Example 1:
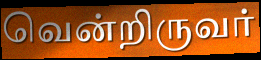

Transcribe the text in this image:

வென்றிருவர்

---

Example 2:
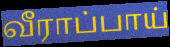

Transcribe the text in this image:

வீராப்பாய்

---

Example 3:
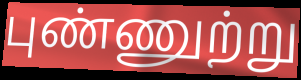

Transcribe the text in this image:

புண்ணுற்று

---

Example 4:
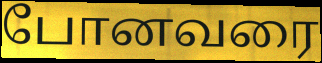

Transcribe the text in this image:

போனவரை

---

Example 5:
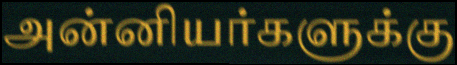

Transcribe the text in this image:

அன்னியர்களுக்கு